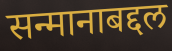
सन्मानाबद्दल